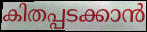
കിതപ്പടക്കാൻ